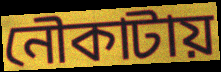
নৌকাটায়